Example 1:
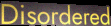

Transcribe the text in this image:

Disordered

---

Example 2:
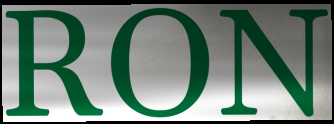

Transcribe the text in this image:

RON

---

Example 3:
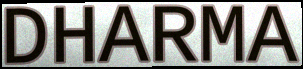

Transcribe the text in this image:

DHARMA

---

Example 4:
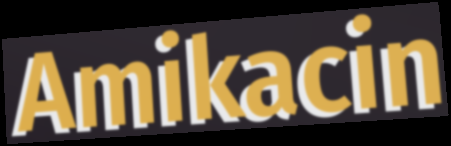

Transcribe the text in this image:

Amikacin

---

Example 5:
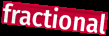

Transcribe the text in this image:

fractional